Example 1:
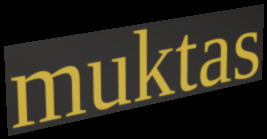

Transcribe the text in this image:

muktas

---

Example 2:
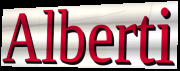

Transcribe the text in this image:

Alberti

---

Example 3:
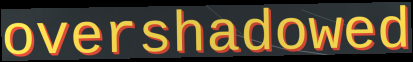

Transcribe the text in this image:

overshadowed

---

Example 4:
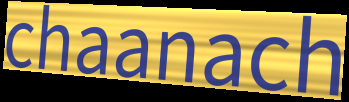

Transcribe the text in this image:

chaanach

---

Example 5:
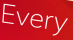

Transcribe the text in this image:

Every